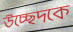
উচ্ছেদকে